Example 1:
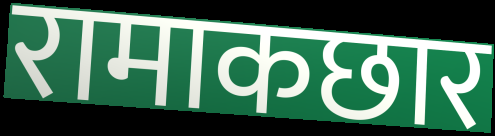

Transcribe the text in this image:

रामाकछार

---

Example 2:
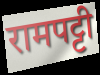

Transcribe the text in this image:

रामपट्टी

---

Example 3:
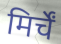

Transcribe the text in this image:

मिर्चें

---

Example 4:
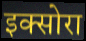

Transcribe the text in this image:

इक्सोरा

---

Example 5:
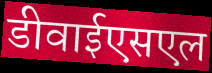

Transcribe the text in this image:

डीवाईएसएल